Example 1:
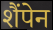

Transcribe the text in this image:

शैंपेन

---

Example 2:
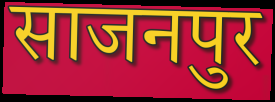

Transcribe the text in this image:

साजनपुर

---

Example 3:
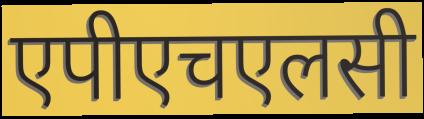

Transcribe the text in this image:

एपीएचएलसी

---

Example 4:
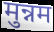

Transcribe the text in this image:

मुन्नम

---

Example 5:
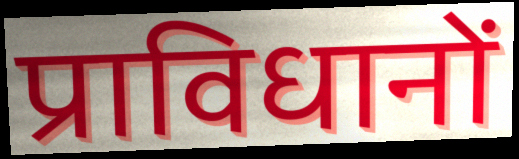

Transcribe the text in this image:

प्राविधानों